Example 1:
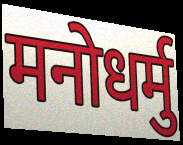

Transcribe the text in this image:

मनोधर्मु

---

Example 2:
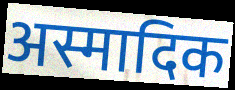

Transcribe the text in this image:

अस्मादिक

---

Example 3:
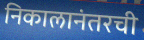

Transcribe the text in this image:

निकालानंतरची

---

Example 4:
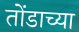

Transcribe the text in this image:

तोंडाच्या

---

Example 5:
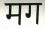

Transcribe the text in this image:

मग